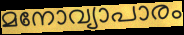
മനോവ്യാപാരം